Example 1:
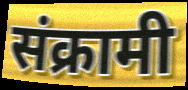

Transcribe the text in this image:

संक्रामी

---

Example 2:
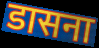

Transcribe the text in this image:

डासना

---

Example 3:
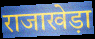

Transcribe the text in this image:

राजाखेड़ा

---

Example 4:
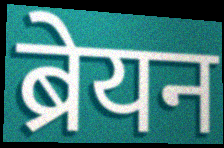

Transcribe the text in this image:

ब्रेयन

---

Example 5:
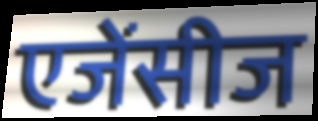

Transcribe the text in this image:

एजेंसीज